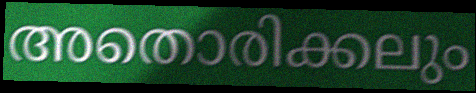
അതൊരിക്കലും